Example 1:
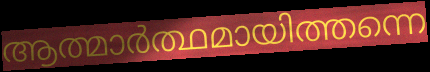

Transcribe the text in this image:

ആത്മാർത്ഥമായിത്തന്നെ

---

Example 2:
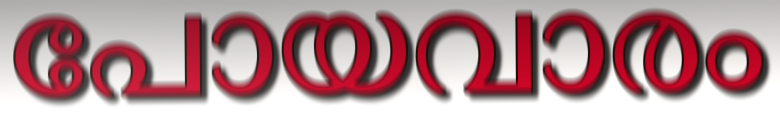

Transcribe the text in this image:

പോയവാരം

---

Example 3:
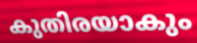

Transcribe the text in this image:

കുതിരയാകും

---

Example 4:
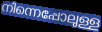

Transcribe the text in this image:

നിന്നെപ്പോലുള്ള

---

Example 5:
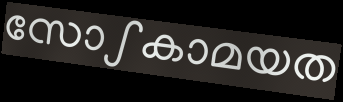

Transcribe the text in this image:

സോഽകാമയത